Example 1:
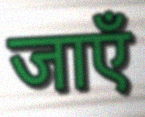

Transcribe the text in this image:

जाएँ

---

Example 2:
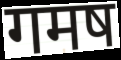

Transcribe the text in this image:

गमष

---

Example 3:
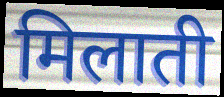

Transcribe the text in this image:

मिलाती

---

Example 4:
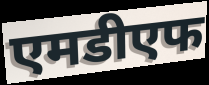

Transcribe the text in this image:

एमडीएफ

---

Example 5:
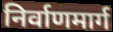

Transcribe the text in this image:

निर्वाणमार्ग